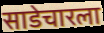
साडेचारला